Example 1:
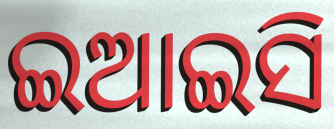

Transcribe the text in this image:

ଇଆଇସି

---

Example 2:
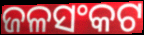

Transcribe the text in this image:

ଜଳସଂକଟ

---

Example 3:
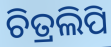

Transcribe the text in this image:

ଚିତ୍ରଲିପି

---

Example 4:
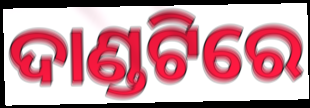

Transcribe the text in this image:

ଦାଣ୍ଡଟିରେ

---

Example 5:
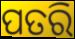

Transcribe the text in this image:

ପତରି